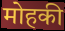
मोहकी